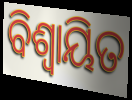
ବିଶ୍ବାୟିତ